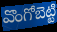
వొంగోబెట్టి